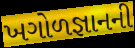
ખગોળજ્ઞાનની